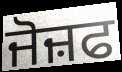
ਜੋਜ਼ਫ